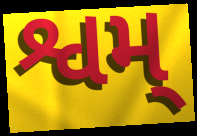
શ્વમ્